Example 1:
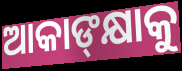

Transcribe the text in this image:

ଆକାଙ୍‍କ୍ଷାକୁ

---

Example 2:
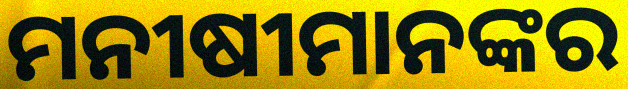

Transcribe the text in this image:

ମନୀଷୀମାନଙ୍କର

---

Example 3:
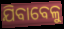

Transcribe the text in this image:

ଯିବାବେଳୁ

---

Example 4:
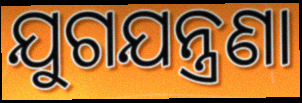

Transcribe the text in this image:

ଯୁଗଯନ୍ତ୍ରଣା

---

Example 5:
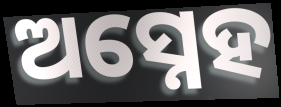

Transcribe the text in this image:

ଅସ୍ନେହ